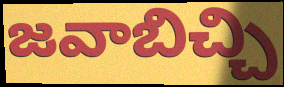
జవాబిచ్చి